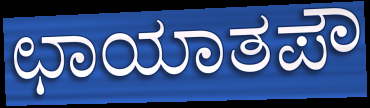
ಛಾಯಾತಪೌ